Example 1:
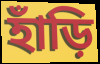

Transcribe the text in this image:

হাঁড়ি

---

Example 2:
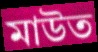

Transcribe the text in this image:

মাউত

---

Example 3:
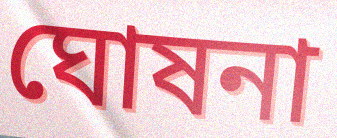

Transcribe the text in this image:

ঘোষনা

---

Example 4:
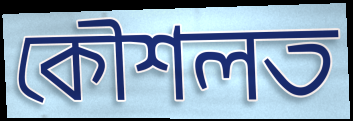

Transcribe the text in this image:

কৌশলত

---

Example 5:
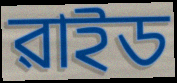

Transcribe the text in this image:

ৱাইড